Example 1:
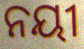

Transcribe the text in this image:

ନୟୀ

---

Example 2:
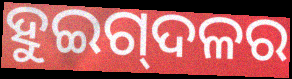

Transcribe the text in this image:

ହୁଇଗ୍‌ଦଳର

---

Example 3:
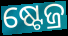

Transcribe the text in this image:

ଷ୍ଟେଜ୍ର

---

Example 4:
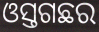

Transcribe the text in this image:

ଓସ୍ତଗଛର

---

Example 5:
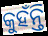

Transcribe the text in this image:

କୁହଁନ୍ତି